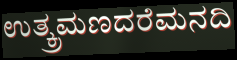
ಉತ್ಕ್ರಮಣದರೆಮನದಿ